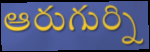
ఆరుగుర్ని